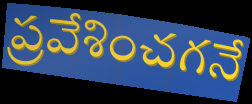
ప్రవేశించగనే